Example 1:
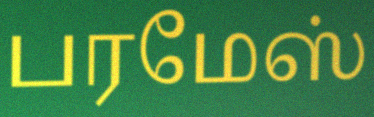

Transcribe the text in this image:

பரமேஸ்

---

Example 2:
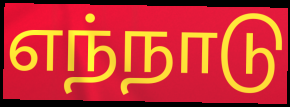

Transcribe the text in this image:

எந்நாடு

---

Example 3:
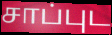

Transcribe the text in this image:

சாப்புட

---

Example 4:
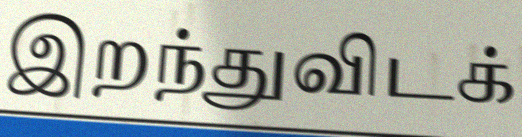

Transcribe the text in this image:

இறந்துவிடக்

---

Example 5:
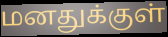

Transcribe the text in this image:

மனதுக்குள்